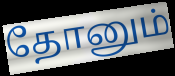
தோனும்